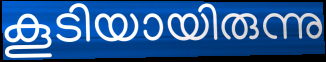
കൂടിയായിരുന്നു